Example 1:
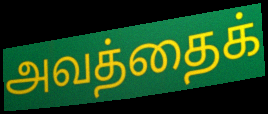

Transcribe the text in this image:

அவத்தைக்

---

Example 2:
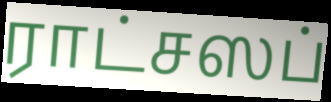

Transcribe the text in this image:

ராட்சஸப்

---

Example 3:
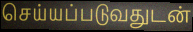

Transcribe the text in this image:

செய்யப்படுவதுடன்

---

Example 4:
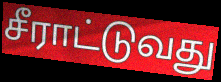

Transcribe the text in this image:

சீராட்டுவது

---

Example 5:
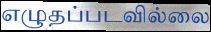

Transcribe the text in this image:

எழுதப்படவில்லை